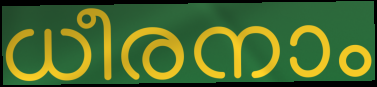
ധീരനാം